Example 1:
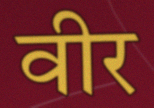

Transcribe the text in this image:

वीर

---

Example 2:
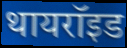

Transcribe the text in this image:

थायरॉइड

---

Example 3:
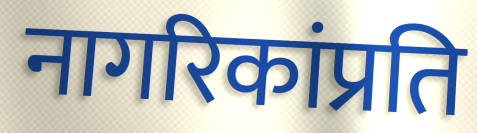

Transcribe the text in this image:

नागरिकांप्रति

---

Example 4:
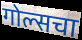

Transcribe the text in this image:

गोल्सचा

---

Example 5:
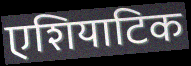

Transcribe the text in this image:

एशियाटिक